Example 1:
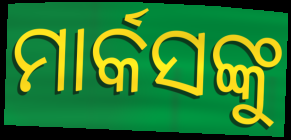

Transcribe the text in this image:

ମାର୍କସଙ୍କୁ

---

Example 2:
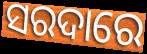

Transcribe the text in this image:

ସରଦାରେ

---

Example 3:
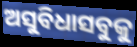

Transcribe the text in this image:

ଅସୁବିଧାସବୁକୁ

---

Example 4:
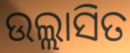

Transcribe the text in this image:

ଉଲ୍ଲାସିତ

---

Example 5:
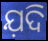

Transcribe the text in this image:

ଯ଼ଦି